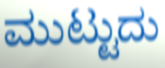
ಮುಟ್ಟುದು